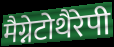
मैग्नेटोथैरेपी